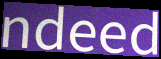
ndeed